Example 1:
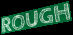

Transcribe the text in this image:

ROUGH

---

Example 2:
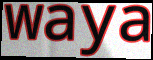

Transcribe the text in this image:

waya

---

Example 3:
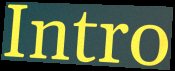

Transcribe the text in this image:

Intro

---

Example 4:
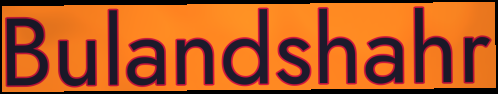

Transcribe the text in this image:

Bulandshahr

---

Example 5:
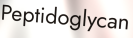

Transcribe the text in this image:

Peptidoglycan